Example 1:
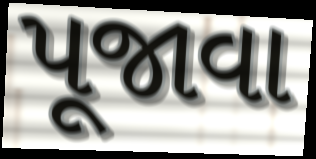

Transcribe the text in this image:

પૂજાવા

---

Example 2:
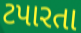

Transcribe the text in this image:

ટપારતા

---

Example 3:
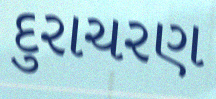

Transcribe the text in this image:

દુરાચરણ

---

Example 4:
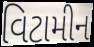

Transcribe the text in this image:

વિટામીન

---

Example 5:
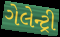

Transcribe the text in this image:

ગેલેન્ટ્રી